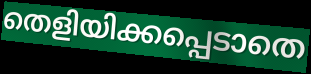
തെളിയിക്കപ്പെടാതെ